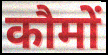
कौमों